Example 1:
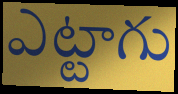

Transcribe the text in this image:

ఎట్టాగు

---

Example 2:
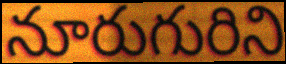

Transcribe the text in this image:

నూరుగురిని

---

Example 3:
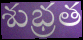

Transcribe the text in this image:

శుభ్రత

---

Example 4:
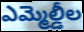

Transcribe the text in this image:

ఎమ్మెల్డీల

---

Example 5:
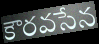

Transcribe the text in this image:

కౌరవసేన